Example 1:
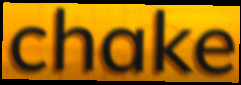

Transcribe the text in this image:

chake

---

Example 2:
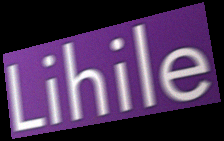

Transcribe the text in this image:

Lihile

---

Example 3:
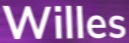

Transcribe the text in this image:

Willes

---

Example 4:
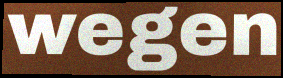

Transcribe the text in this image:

wegen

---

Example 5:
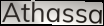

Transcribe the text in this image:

Athassa